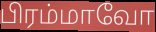
பிரம்மாவோ